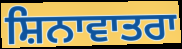
ਸ਼ਿਨਾਵਾਤਰਾ